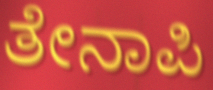
ತೇನಾಪಿ